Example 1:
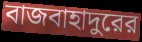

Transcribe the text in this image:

বাজবাহাদুরের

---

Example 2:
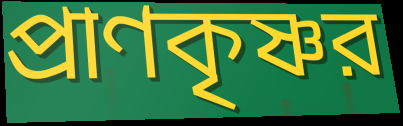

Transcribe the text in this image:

প্রাণকৃষ্ণর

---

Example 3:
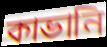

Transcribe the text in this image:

কাভানি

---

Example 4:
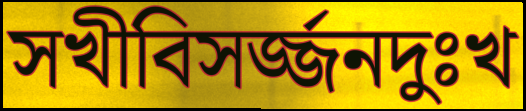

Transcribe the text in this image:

সখীবিসর্জ্জনদুঃখ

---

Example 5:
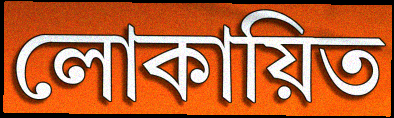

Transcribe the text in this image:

লোকায়িত